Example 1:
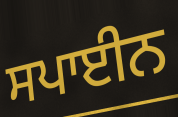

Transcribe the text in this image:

ਸਪਾਈਨ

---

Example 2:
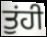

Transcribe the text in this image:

ਤੁਂਹੀ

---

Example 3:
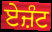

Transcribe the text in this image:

ਏਜ਼ੰਟ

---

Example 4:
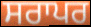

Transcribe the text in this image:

ਸਰਾਪਰ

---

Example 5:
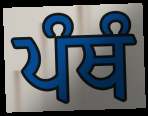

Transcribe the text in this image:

ਪੰਥੰ